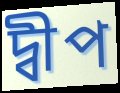
দ্বীপ